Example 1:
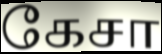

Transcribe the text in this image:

கேசா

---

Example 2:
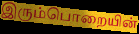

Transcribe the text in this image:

இரும்பொறையின்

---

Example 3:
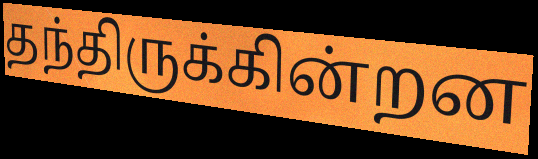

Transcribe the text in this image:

தந்திருக்கின்றன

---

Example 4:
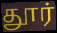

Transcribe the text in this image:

தூர்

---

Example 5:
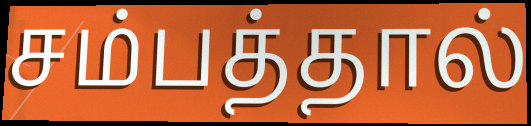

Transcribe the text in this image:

சம்பத்தால்